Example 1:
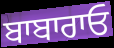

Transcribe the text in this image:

ਬਾਬਾਰਾਓ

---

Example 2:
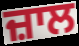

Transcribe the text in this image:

ਜ਼ਾਲ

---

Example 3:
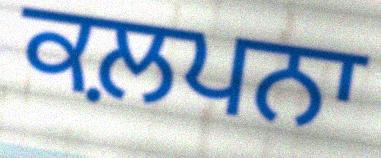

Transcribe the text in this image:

ਕਲ਼ਪਨਾ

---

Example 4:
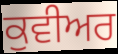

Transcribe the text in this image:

ਕੁਵੀਅਰ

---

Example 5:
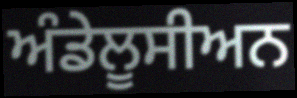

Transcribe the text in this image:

ਅੰਡੇਲੂਸੀਅਨ